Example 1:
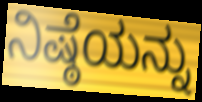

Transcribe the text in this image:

ನಿಷ್ಠೆಯನ್ನು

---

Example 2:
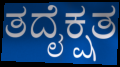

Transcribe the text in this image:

ತದೈಕ್ಷತ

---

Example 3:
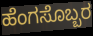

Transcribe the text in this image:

ಹೆಂಗಸೊಬ್ಬರ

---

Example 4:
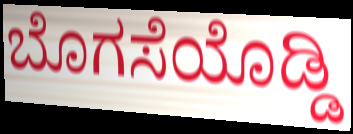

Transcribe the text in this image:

ಬೊಗಸೆಯೊಡ್ಡಿ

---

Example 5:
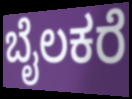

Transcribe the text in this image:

ಬೈಲಕರೆ